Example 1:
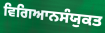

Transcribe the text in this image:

ਵਿਗਿਆਨਸੰਯੁਕਤ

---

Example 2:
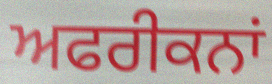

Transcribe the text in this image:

ਅਫਰੀਕਨਾਂ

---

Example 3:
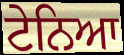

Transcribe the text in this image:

ਟੇਨਿਆ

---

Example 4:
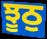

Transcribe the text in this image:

ਝੂਠੁ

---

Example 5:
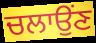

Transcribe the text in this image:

ਚਲਾਉਂਣ